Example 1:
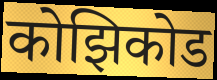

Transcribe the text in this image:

कोझिकोड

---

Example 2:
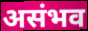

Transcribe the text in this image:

असंभव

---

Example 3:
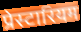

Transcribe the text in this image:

प्रेस्टारियम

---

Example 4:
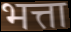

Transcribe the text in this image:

भत्ता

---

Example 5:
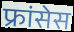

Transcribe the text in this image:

फ्रांसेस